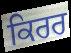
ਕਿਰਰ